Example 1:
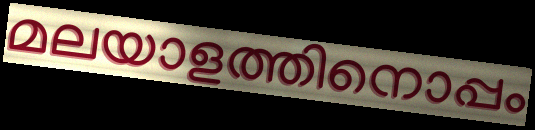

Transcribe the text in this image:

മലയാളത്തിനൊപ്പം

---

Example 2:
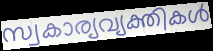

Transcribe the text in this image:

സ്വകാര്യവ്യക്തികൾ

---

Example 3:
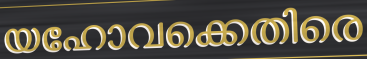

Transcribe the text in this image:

യഹോവക്കെതിരെ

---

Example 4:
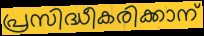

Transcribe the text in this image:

പ്രസിദ്ധീകരിക്കാന്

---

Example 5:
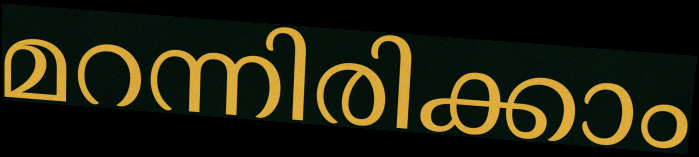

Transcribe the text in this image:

മറന്നിരിക്കാം